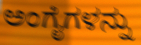
ಅಂಗೈಗಳನ್ನು